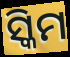
ସ୍କିମ